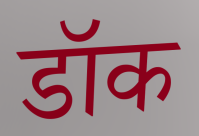
डॉक